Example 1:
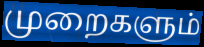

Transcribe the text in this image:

முறைகளும்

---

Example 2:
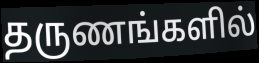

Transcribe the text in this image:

தருணங்களில்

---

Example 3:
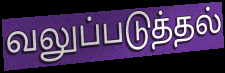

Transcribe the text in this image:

வலுப்படுத்தல்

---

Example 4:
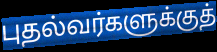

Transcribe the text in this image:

புதல்வர்களுக்குத்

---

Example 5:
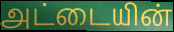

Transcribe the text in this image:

அட்டையின்